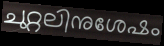
ചുറ്റലിനുശേഷം